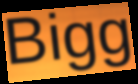
Bigg